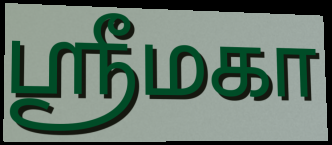
ஸ்ரீமகா